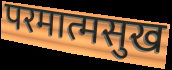
परमात्मसुख